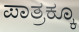
ಪಾತ್ರಕ್ಕೂ